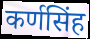
कर्णसिंह